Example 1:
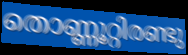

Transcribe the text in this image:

തൊണ്ണൂറ്റിരണ്ടു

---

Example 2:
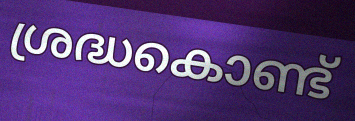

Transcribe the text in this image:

ശ്രദ്ധകൊണ്ട്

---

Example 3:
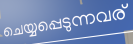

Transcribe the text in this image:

ചെയ്യപ്പെടുന്നവര്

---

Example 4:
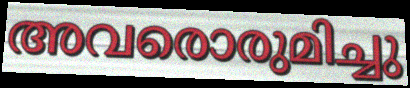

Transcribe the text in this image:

അവരൊരുമിച്ചു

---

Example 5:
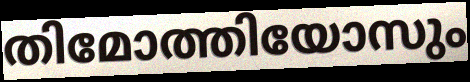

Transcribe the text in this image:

തിമോത്തിയോസും